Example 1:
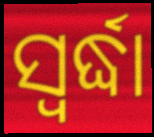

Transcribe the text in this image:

ସ୍ଵର୍ଦ୍ଧା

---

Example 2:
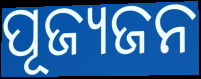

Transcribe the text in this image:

ପୂଜ୍ୟଜନ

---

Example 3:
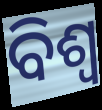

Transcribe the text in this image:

ବିଶ୍ୱ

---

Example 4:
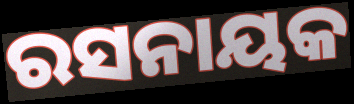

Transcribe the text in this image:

ରସନାୟକ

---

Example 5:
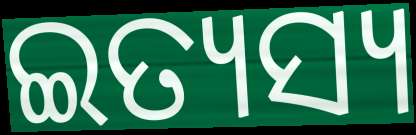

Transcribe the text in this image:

ଇତ୍ୟସ୍ୟ